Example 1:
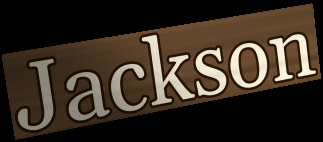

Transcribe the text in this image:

Jackson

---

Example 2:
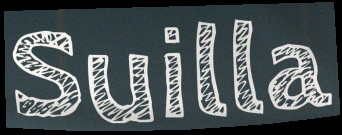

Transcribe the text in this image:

Suilla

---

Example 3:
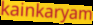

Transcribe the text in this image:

kainkaryam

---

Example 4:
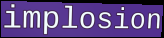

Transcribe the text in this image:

implosion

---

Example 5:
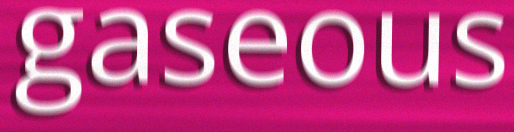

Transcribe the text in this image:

gaseous